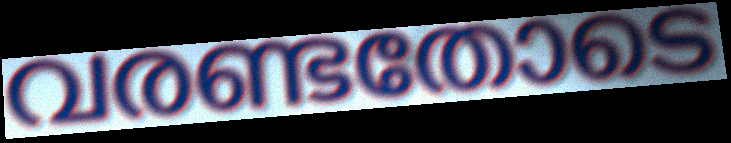
വരണ്ടതോടെ